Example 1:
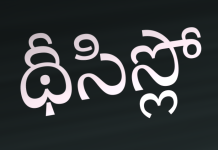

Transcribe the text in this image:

థీసిస్లో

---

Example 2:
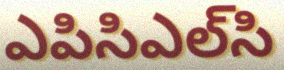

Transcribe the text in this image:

ఎపిసిఎల్‌సి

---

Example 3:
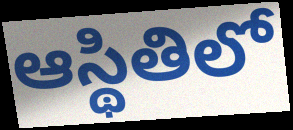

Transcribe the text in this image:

ఆస్థితిలో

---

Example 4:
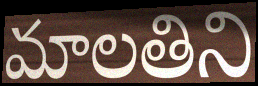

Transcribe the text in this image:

మాలతిని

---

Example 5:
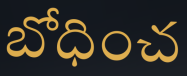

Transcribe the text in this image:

బోధించ